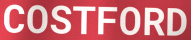
COSTFORD